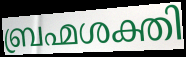
ബ്രഹ്മശക്തി